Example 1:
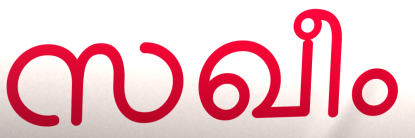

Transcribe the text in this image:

സഖീം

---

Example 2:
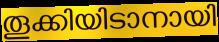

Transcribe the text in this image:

തൂക്കിയിടാനായി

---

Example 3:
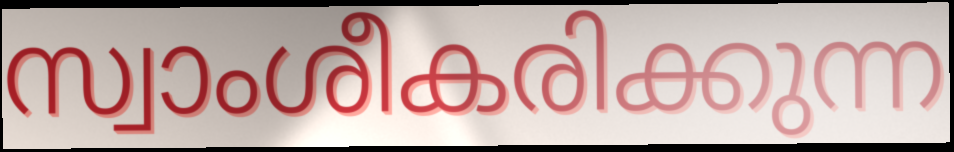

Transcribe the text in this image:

സ്വാംശീകരിക്കുന്ന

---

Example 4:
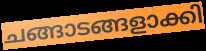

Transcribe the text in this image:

ചങ്ങാടങ്ങളാക്കി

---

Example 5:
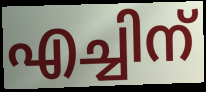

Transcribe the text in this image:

എച്ചിന്